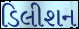
ડિલીશન